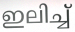
ഇലിച്ച്